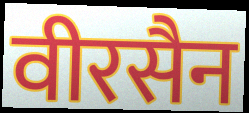
वीरसैन